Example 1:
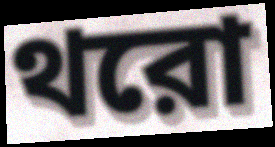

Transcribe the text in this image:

থরো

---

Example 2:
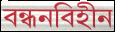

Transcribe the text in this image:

বন্ধনবিহীন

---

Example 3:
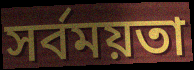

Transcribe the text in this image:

সর্বময়তা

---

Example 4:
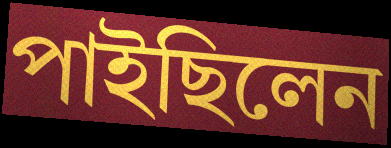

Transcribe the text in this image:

পাইছিলেন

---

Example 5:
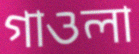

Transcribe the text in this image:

গাওলা